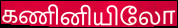
கணினியிலோ